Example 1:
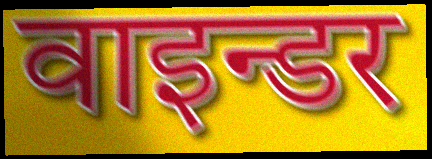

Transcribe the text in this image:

वाइन्डर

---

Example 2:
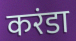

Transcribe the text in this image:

करंडा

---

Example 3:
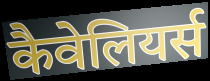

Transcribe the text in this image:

कैवेलियर्स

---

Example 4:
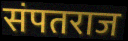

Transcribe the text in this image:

संपतराज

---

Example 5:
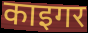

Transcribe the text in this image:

काइगर